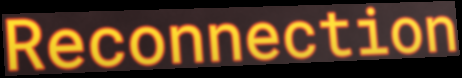
Reconnection